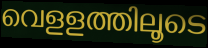
വെളളത്തിലൂടെ